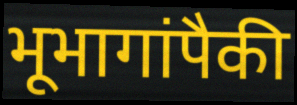
भूभागांपैकी